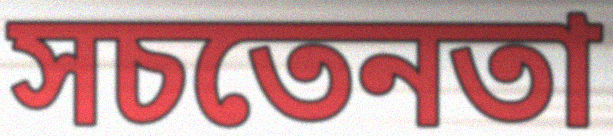
সচতেনতা